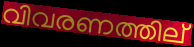
വിവരണത്തില്